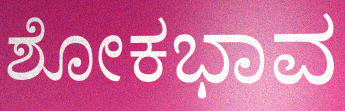
ಶೋಕಭಾವ